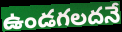
ఉండగలదనే